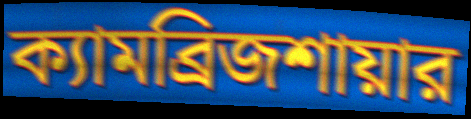
ক্যামব্রিজশায়ার